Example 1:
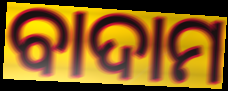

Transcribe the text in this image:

ବାଦାମ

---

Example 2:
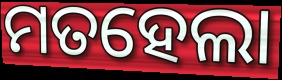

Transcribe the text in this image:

ମତହେଲା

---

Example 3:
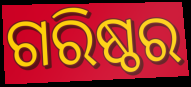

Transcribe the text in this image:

ଗରିଷ୍ଠର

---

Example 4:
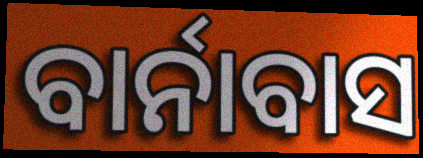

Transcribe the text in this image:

ବାର୍ନାବାସ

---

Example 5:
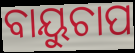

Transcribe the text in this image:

ବାୟୁଚାପ